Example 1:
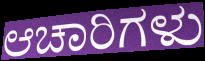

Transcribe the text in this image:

ಆಚಾರಿಗಳು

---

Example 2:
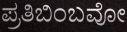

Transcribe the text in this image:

ಪ್ರತಿಬಿಂಬವೋ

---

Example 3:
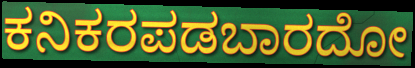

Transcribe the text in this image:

ಕನಿಕರಪಡಬಾರದೋ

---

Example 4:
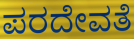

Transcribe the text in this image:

ಪರದೇವತೆ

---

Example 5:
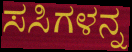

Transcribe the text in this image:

ಸಸಿಗಳನ್ನ